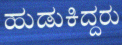
ಹುಡುಕಿದ್ದರು